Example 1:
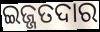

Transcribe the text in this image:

ଇଜ୍ଜତଦାର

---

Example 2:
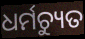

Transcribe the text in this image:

ଧର୍ମଚ୍ୟୁତ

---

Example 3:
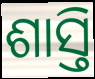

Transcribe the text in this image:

ଶାସ୍ତି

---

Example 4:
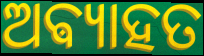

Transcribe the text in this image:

ଅଵ୍ୟାହତ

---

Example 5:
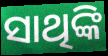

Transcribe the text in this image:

ସାଥିଙ୍କି